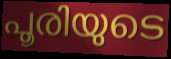
പൂരിയുടെ